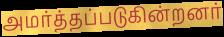
அமர்த்தப்படுகின்றனர்